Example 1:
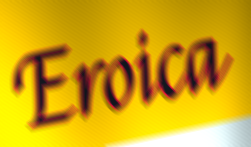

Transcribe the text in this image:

Eroica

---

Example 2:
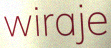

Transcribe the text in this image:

wiraje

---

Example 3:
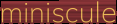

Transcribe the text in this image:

miniscule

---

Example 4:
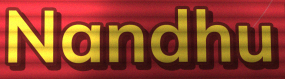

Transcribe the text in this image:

Nandhu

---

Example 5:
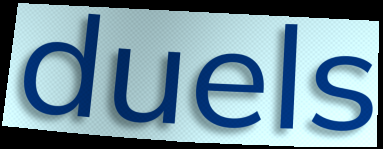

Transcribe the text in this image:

duels